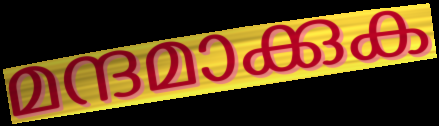
മന്ദമാക്കുക